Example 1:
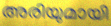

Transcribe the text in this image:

അരിയുമായി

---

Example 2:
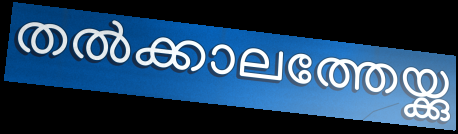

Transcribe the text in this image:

തൽക്കാലത്തേയ്ക്കു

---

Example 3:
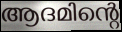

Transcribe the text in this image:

ആദമിന്റെ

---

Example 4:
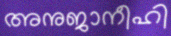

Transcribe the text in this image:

അനുജാനീഹി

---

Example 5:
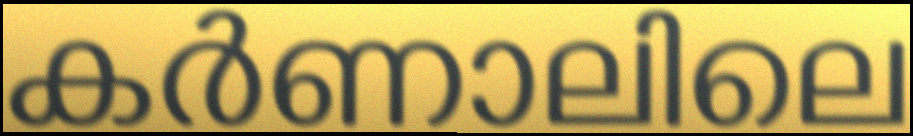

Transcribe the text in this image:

കർണാലിലെ